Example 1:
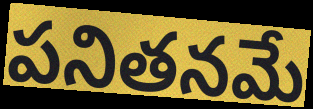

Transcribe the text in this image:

పనితనమే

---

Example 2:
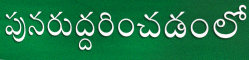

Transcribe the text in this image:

పునరుద్దరించడంలో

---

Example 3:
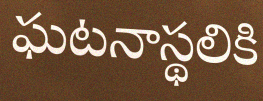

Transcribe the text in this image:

ఘటనాస్థలికి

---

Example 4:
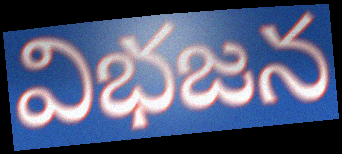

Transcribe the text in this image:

విభజన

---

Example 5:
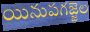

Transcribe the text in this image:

యినుపగజ్జెల